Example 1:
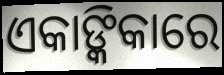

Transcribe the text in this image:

ଏକାଙ୍କିକାରେ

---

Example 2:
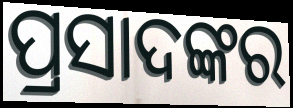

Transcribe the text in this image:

ପ୍ରସାଦଙ୍କର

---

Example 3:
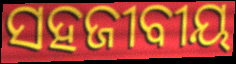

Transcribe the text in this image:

ସହଜୀବୀୟ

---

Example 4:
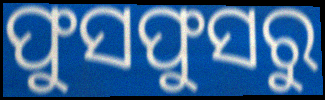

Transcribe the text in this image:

ଫୁସଫୁସରୁ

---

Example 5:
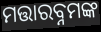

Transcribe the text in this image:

ମତ୍ତାରବ୍ନମଙ୍କ